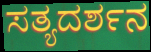
ಸತ್ಯದರ್ಶನ